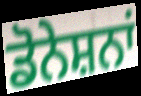
ਡੋਨੇਸ਼ਨਾਂ